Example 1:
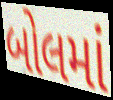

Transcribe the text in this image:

બોલમાં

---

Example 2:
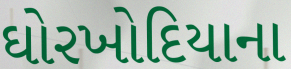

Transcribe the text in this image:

ઘોરખોદિયાના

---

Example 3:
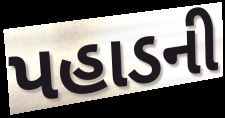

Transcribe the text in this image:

પહાડની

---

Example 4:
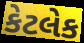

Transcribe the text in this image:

કેટલેક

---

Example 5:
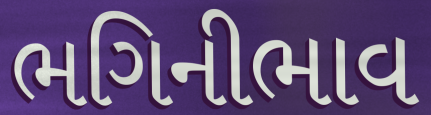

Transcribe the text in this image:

ભગિનીભાવ